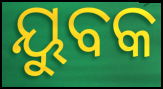
ୟୁବକ